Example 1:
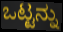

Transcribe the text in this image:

ಒಟ್ಟನ್ನು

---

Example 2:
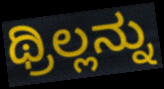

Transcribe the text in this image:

ಥ್ರಿಲ್ಲನ್ನು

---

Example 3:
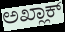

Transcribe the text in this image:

ಅಖ್ಲಾಕ್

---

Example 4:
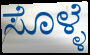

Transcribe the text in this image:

ಸೊಳ್ಳೆ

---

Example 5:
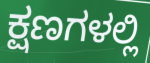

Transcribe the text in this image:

ಕ್ಷಣಗಳಲ್ಲಿ